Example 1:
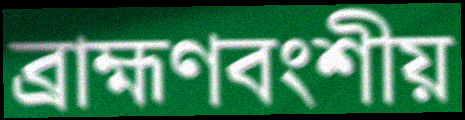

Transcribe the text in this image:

ব্রাহ্মণবংশীয়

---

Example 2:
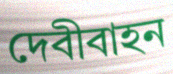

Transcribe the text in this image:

দেবীবাহন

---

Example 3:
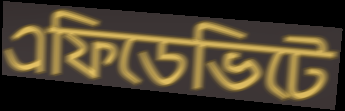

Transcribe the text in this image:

এফিডেভিটে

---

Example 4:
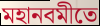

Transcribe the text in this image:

মহানবমীতে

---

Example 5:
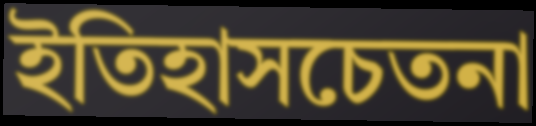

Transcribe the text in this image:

ইতিহাসচেতনা